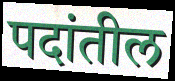
पदांतील